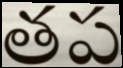
తప